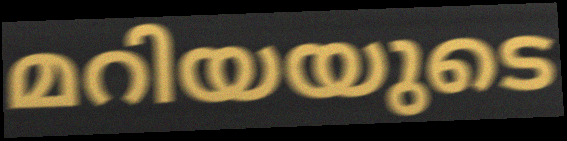
മറിയയുടെ